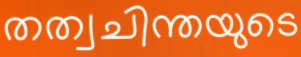
തത്വചിന്തയുടെ